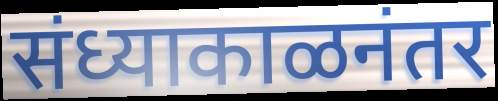
संध्याकाळनंतर